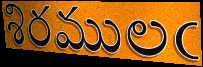
శిరములఁ